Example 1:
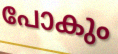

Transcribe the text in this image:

പോകും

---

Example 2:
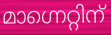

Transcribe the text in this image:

മാഗ്നെറ്റിന്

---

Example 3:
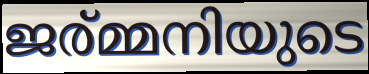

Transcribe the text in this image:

ജര്മ്മനിയുടെ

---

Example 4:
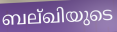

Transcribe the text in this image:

ബല്ഖിയുടെ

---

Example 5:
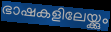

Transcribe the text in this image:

ഭാഷകളിലേയ്ക്കും